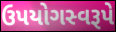
ઉપયોગસ્વરૂપે